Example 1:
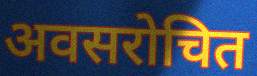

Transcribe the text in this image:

अवसरोचित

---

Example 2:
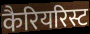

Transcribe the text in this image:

कैरियरिस्ट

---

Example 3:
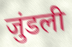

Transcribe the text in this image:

जुंडली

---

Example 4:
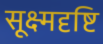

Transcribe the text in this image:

सूक्ष्मदृष्टि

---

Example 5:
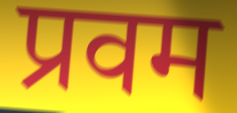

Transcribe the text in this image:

प्रवम